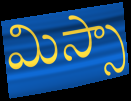
మిస్సా